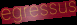
egressus